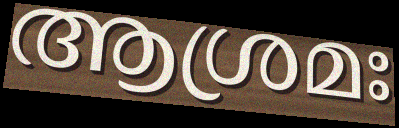
ആശ്രമഃ